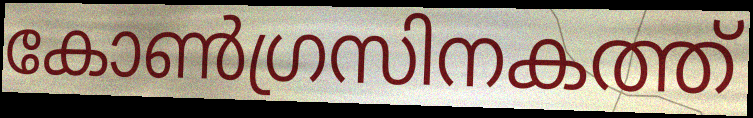
കോൺഗ്രസിനകത്ത്